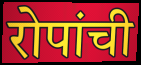
रोपांची